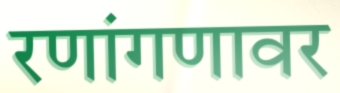
रणांगणावर